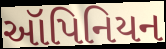
ઑપિનિયન